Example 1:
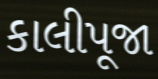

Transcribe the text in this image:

કાલીપૂજા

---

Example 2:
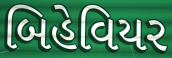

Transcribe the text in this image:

બિહેવિયર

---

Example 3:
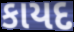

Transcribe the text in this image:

કાયદ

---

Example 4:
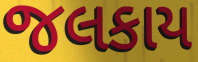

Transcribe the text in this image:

જલકાય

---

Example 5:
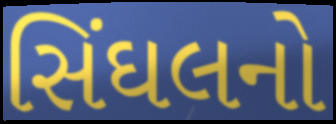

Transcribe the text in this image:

સિંઘલનો